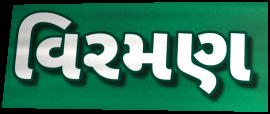
વિરમણ